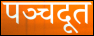
पञ्चदूत